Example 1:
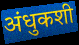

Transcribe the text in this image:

अंधुकशी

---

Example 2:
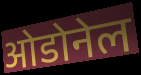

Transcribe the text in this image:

ओडोनेल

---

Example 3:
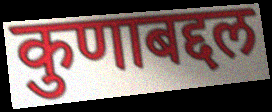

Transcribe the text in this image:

कुणाबद्दल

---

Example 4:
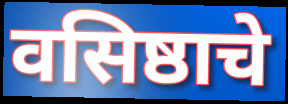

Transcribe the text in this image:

वसिष्ठाचे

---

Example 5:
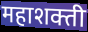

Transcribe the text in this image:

महाशक्‍ती